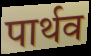
पार्थव